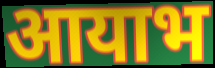
आयाभ